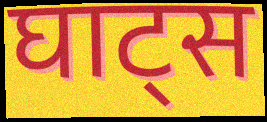
घाट्स